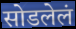
सोडलेलं